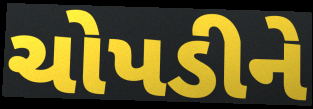
ચોપડીને